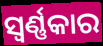
ସ୍ୱର୍ଣ୍ଣକାର